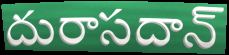
దురాసదాన్